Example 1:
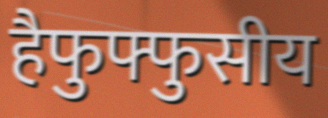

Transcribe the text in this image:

हैफुफ्फुसीय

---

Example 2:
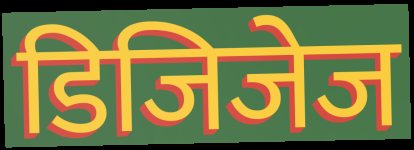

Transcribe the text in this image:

डिजिजेज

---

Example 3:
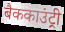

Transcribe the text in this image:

बैककाउंट्री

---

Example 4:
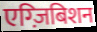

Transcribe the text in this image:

एग्ज़िबिशन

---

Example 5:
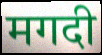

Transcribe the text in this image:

मगदी